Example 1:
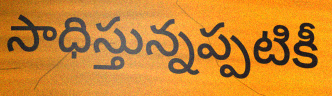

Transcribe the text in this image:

సాధిస్తున్నప్పటికీ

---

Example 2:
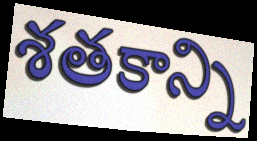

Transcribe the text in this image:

శతకాన్ని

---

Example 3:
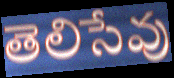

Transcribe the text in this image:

తెలిసేవు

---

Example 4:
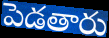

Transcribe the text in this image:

పెడతారు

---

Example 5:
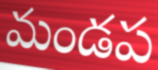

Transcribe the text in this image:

మండప